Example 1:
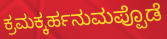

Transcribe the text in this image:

ಕ್ರಮಕ್ಕರ್ಹನುಮಪ್ಪೊಡೆ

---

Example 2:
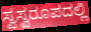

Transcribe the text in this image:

ಸ್ವಸ್ವರೂಪದಲ್ಲಿ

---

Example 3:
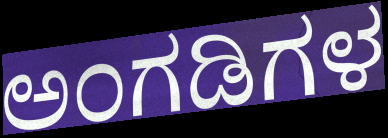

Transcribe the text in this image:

ಅಂಗಡಿಗಳ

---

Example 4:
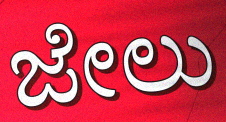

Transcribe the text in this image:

ಜೇಲು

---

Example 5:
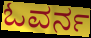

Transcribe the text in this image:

ಓವರ್ನ